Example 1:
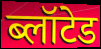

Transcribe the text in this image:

ब्लॉटेड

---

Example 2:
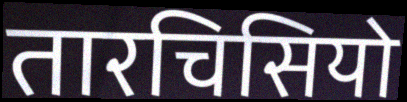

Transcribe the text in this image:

तारचिसियो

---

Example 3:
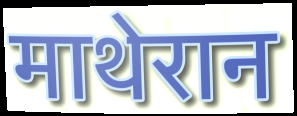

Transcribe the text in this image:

माथेरान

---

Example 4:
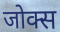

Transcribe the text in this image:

जोक्स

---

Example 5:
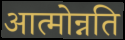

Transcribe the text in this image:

आत्मोन्नति